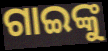
ଗାଇଙ୍କୁ